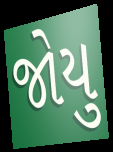
જોયુ